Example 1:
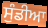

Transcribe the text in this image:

ਸੁੰਡੀਆ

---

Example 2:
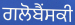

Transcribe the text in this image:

ਗਲੋਬੈਂਸਕੀ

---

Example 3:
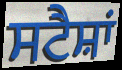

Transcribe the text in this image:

ਸਟੈਸ਼ਾਂ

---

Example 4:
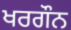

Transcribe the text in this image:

ਖਰਗੌਨ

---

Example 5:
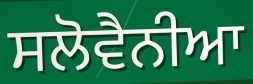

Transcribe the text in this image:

ਸਲੋਵੈਨੀਆ